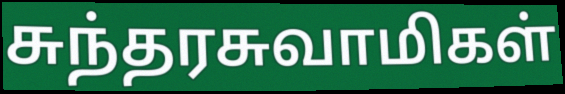
சுந்தரசுவாமிகள்